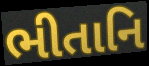
ભીતાનિ